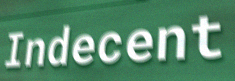
Indecent